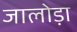
जालोड़ा